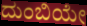
ದುಂಬಿಯೇ